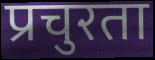
प्रचुरता